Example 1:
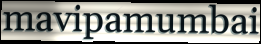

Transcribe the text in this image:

mavipamumbai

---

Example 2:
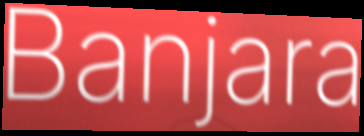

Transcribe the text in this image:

Banjara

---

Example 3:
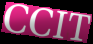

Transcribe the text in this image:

CCIT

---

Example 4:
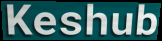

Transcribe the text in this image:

Keshub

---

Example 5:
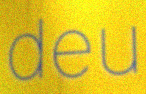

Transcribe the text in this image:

deu